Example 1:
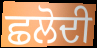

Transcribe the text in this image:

ਛਲੋਦੀ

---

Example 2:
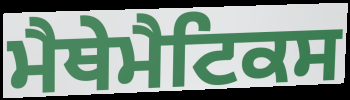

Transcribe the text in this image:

ਮੈਥੇਮੈਟਿਕਸ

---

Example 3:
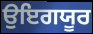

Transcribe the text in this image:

ਉਇਗਯੂਰ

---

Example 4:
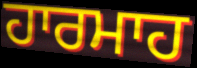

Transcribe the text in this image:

ਹਾਰਮਾਹ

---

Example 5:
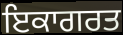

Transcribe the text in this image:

ਇਕਾਗਰਤ